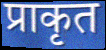
प्राकृत